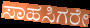
ಸಾಹಸಿಗರೇ